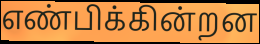
எண்பிக்கின்றன